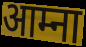
आम्ना